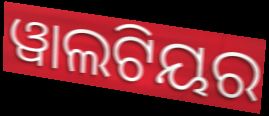
ୱାଲଟିୟର